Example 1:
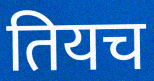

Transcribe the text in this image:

तियच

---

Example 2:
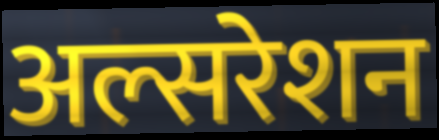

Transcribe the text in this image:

अल्सरेशन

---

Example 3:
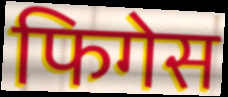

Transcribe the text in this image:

फिगेस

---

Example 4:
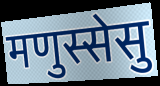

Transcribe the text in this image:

मणुस्सेसु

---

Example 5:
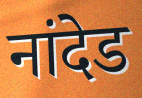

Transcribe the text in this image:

नांदेड